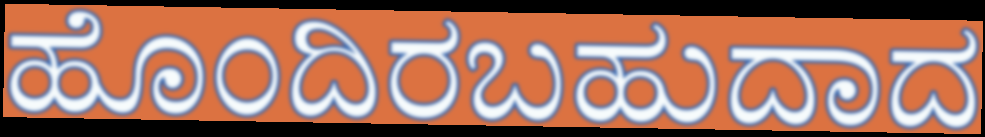
ಹೊಂದಿರಬಹುದಾದ